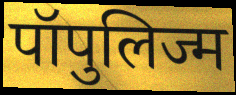
पॉपुलिज्म